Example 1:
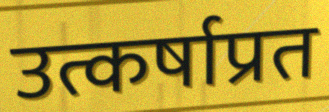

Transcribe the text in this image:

उत्कर्षाप्रत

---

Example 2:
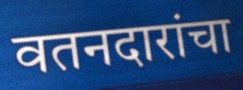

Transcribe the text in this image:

वतनदारांचा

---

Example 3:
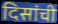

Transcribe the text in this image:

दिसांची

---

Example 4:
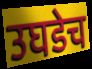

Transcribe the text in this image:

उघडेच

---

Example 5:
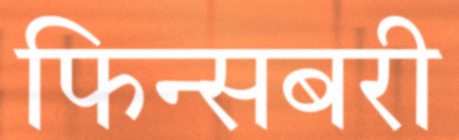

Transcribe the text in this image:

फिन्सबरी